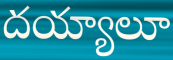
దయ్యాలూ